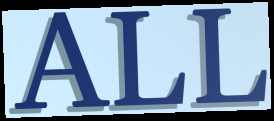
ALL